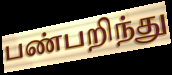
பண்பறிந்து